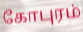
கோபுரம்